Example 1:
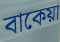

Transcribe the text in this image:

বাকেয়া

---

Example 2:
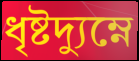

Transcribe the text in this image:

ধৃষ্টদ্যুম্নে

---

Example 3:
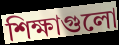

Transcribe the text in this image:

শিক্ষাগুলো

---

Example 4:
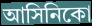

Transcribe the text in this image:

আসিনিকো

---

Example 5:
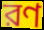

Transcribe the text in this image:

রণ